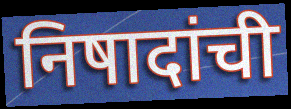
निषादांची